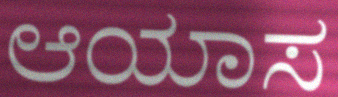
ಆಯಾಸ